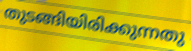
തുടങ്ങിയിരിക്കുന്നതു